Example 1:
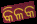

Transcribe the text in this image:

କିଳକ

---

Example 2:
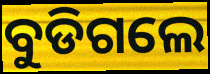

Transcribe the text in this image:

ବୁଡିଗଲେ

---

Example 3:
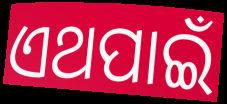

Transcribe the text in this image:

ଏଥପାଇଁ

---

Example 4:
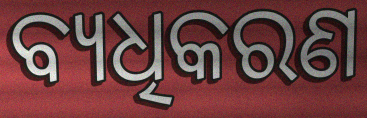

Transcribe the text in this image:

ବ୍ୟଧିକରଣ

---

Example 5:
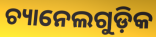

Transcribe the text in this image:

ଚ୍ୟାନେଲଗୁଡ଼ିକ